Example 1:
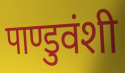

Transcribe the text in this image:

पाण्डुवंशी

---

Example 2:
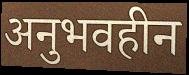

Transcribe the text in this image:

अनुभवहीन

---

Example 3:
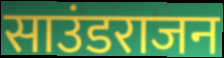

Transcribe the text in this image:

साउंडराजन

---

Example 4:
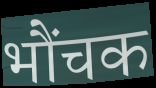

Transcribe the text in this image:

भौंचक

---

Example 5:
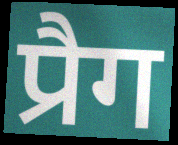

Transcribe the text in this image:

प्रैग